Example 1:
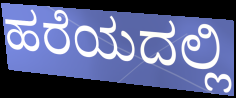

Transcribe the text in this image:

ಹರೆಯದಲ್ಲಿ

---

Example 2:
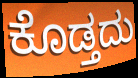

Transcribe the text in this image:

ಕೊಡ್ತದು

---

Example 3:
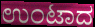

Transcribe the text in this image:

ಉಂಟಾದ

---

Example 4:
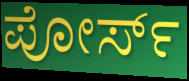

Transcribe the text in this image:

ಪೋರ್ಸ್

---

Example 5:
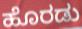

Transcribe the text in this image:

ಹೊರಡು